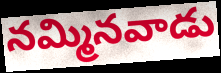
నమ్మినవాడు